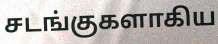
சடங்குகளாகிய